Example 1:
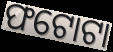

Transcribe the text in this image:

ଫଟୋଟା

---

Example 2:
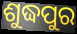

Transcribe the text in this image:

ଶୁଦ୍ଧପୁର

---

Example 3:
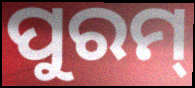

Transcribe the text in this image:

ପୁରମ୍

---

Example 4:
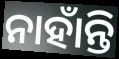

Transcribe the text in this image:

ନାହାଁନ୍ତି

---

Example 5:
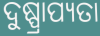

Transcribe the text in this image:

ଦୁଷ୍ପ୍ରାପ୍ୟତା